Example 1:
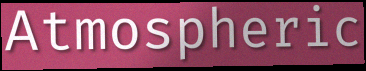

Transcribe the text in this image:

Atmospheric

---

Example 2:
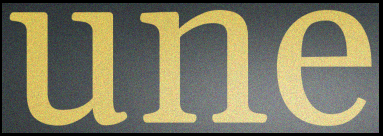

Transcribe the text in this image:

une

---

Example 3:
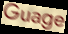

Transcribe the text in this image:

Guage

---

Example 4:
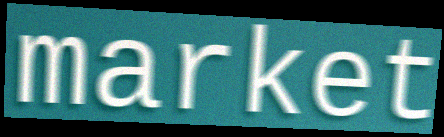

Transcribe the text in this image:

market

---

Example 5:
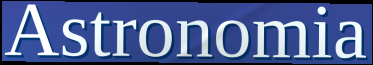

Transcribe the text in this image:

Astronomia